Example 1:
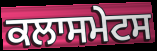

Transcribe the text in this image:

ਕਲਾਸਮੇਟਸ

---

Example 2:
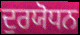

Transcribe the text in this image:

ਦੁਰਯੋਧਨ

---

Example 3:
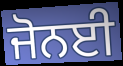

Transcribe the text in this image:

ਜੋਨਈ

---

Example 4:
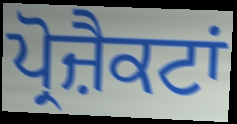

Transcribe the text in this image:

ਪ੍ਰੋਜ਼ੈਕਟਾਂ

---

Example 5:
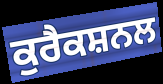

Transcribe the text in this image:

ਕੁਰੈਕਸ਼ਨਲ